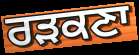
ਰੜਕਣਾ